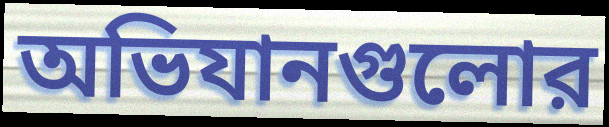
অভিযানগুলোর